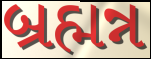
બ્રહ્મન્ન